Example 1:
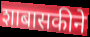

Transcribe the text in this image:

शाबासकीने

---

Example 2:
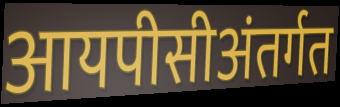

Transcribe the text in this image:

आयपीसीअंतर्गत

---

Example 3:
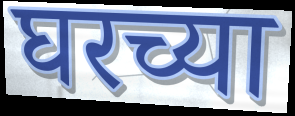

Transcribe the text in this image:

घरच्या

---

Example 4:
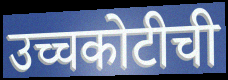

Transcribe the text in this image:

उच्चकोटीची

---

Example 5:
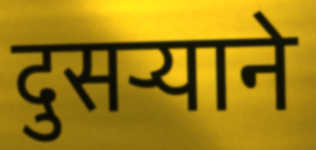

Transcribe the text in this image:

दुसर्‍याने